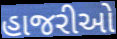
હાજરીઓ